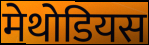
मेथोडियस